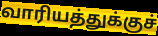
வாரியத்துக்குச்